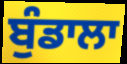
ਬੁੰਡਾਲਾ